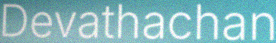
Devathachan